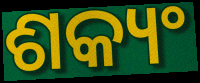
ଶକ୍ୟଂ